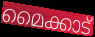
മൈക്കാട്